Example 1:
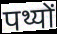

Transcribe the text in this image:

पथ्यों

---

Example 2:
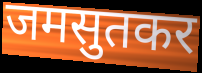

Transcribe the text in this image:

जमसुतकर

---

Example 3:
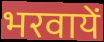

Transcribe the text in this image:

भरवायें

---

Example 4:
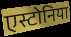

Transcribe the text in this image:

एस्टोनिया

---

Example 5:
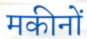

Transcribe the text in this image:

मकीनों